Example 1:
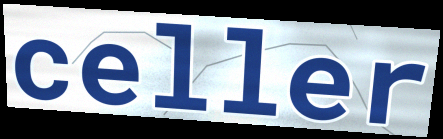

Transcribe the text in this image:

celler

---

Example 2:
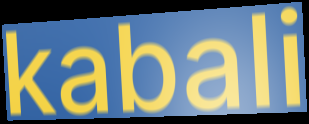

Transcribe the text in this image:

kabali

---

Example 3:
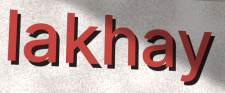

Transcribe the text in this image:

lakhay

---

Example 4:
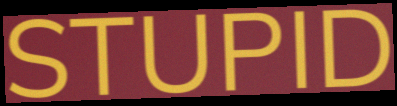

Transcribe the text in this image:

STUPID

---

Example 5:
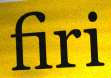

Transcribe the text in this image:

firi